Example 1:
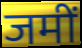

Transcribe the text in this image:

जमीं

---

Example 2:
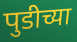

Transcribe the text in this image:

पुडीच्या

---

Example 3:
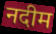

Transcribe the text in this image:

नदीम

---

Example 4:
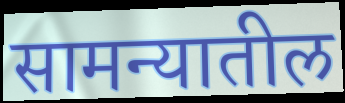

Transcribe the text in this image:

सामन्यातील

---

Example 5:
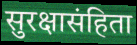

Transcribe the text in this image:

सुरक्षासंहिता